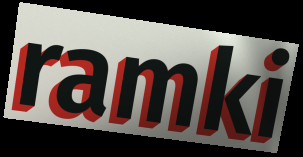
ramki